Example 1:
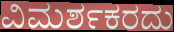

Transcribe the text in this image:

ವಿಮರ್ಶಕರದು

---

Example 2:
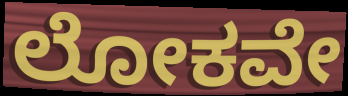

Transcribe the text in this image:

ಲೋಕವೇ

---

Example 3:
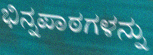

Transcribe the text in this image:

ಭಿನ್ನಪಾಠಗಳನ್ನು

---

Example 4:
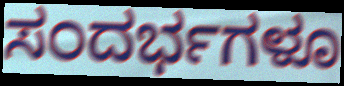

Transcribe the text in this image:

ಸಂದರ್ಭಗಳೂ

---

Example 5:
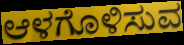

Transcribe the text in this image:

ಆಳಗೊಳಿಸುವ